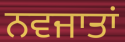
ਨਵਜਾਤਾਂ